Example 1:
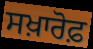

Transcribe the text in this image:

ਸਖ਼ਾਰੋਫ਼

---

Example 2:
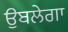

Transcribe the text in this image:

ਉਬਲੇਗਾ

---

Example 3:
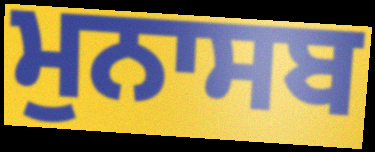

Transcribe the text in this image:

ਮੁਨਾਸਬ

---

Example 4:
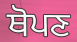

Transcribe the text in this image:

ਥੋਪਣ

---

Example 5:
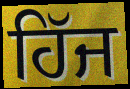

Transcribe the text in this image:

ਹਿੱਜ